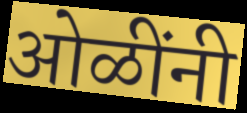
ओळींनी